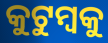
କୁଟୁମ୍ବକୁ